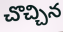
చొచ్చిన